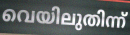
വെയിലുതിന്ന്